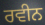
ਰਵੀਨ